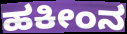
ಹಕೀಂನ